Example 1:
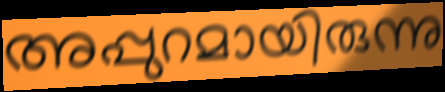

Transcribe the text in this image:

അപ്പുറമായിരുന്നു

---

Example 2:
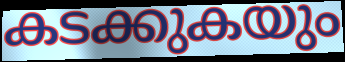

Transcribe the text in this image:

കടക്കുകയും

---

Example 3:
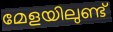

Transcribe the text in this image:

മേളയിലുണ്ട്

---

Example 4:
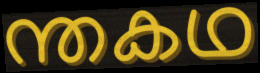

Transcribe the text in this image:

ന്തകഥ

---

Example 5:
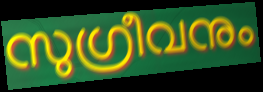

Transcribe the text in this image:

സുഗ്രീവനും